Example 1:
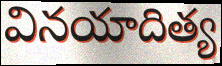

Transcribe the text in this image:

వినయాదిత్య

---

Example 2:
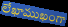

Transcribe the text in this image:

లేఖాముఖంగా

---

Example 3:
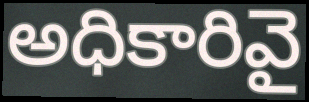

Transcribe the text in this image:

అధికారివై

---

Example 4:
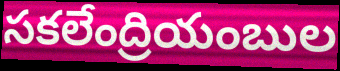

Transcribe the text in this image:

సకలేంద్రియంబుల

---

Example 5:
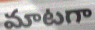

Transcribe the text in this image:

మాటగా